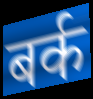
बर्क